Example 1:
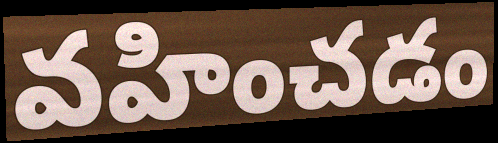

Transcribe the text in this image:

వహించడం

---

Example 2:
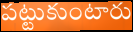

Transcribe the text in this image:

పట్టుకుంటారు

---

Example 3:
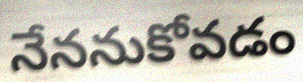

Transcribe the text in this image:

నేననుకోవడం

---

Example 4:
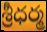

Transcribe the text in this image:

శ్రీధర్మ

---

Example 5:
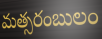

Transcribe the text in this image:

మత్సరంబులం